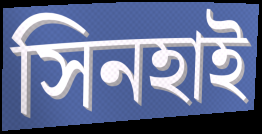
সিনহাই